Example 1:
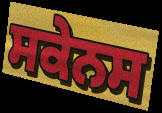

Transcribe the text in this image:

ਸਕੇਨਸ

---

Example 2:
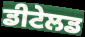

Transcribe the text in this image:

ਡੀਟੇਲਡ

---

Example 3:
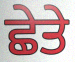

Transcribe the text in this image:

ਛੇਤੇ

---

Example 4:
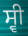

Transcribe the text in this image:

ਸ੍ਵੀ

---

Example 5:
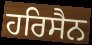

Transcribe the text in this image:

ਹਰਿਸੈਨ